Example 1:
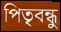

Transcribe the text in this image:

পিতৃবন্ধু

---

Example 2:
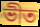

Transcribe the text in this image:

ভীত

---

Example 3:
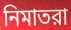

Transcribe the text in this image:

নিমাতরা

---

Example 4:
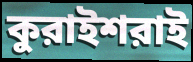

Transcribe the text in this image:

কুরাইশরাই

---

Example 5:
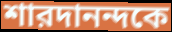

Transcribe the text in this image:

শারদানন্দকে